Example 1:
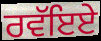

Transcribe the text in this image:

ਰਵੱਇਏ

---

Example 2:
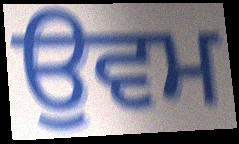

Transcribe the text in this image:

ਉਵਮ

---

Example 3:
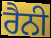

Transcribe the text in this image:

ਰੈਨੀ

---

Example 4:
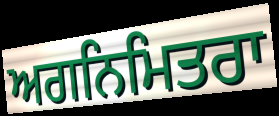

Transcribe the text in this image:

ਅਗਨਿਮਿਤਰਾ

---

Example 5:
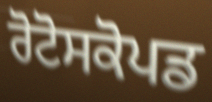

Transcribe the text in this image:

ਰੋਟੋਸਕੋਪਡ